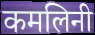
कमलिनी